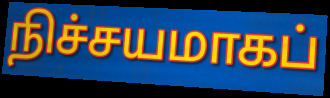
நிச்சயமாகப்